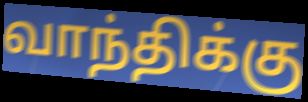
வாந்திக்கு